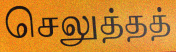
செலுத்தத்